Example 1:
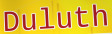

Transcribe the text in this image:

Duluth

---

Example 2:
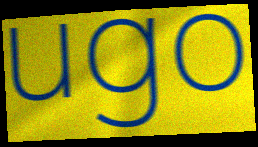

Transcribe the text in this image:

ugo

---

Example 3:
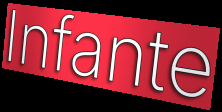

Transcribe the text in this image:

Infante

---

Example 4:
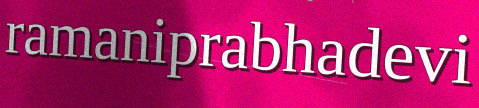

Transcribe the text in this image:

ramaniprabhadevi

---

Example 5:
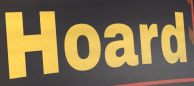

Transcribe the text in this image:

Hoard